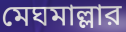
মেঘমাল্লার